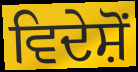
ਵਿਦੇਸ਼ੋਂ